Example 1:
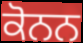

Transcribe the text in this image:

ਕੋਨਨ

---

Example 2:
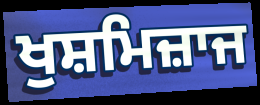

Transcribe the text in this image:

ਖੁਸ਼ਮਿਜ਼ਾਜ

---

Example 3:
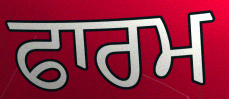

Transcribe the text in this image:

ਫਾਰਮ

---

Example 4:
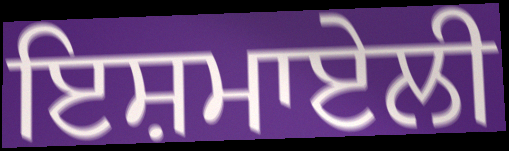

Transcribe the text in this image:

ਇਸ਼ਮਾਏਲੀ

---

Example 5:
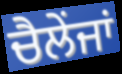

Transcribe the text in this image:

ਚੈਲੇਂਜਾਂ